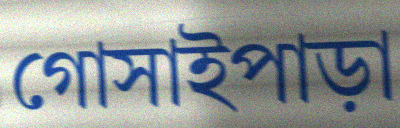
গোসাইপাড়া